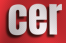
cer